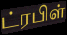
ட்ரபிள்